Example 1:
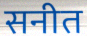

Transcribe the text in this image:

सनीत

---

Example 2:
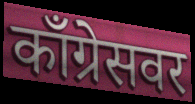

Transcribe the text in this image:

काँग्रेसवर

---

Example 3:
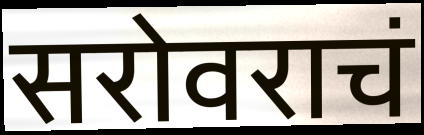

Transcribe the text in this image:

सरोवराचं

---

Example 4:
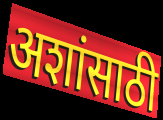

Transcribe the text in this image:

अशांसाठी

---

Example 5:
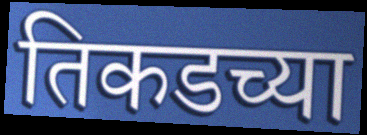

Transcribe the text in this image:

तिकडच्या